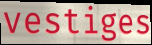
vestiges